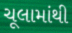
ચૂલામાંથી